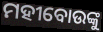
ମହୀବୋଉଙ୍କୁ